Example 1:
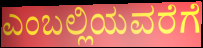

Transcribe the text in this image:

ಎಂಬಲ್ಲಿಯವರೆಗೆ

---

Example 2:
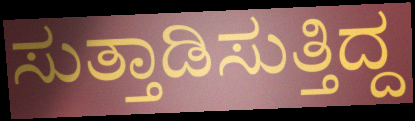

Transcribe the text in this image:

ಸುತ್ತಾಡಿಸುತ್ತಿದ್ದ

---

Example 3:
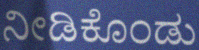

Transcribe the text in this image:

ನೀಡಿಕೊಂಡು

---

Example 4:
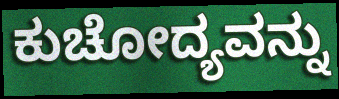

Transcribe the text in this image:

ಕುಚೋದ್ಯವನ್ನು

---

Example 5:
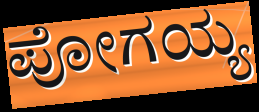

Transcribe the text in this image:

ಪೋಗಯ್ಯ